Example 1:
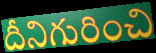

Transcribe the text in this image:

దీనిగురించి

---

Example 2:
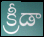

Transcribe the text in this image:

క్రీడా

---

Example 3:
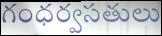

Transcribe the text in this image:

గంధర్వసతులు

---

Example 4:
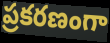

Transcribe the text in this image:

ప్రకరణంగా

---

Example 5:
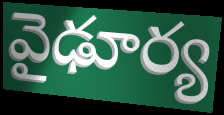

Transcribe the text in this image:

వైఢూర్య